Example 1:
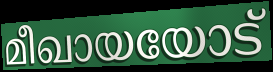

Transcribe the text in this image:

മീഖായയോട്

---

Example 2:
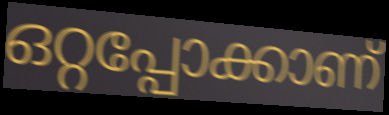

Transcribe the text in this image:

ഒറ്റപ്പോക്കാണ്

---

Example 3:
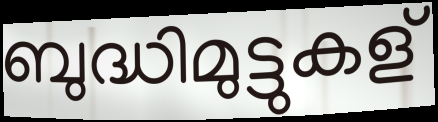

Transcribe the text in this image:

ബുദ്ധിമുട്ടുകള്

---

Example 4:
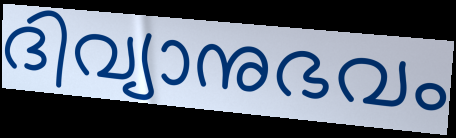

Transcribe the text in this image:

ദിവ്യാനുഭവം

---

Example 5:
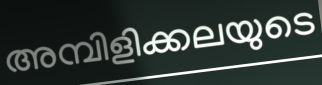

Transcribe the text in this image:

അമ്പിളിക്കലയുടെ